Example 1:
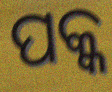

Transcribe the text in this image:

ପକ୍କ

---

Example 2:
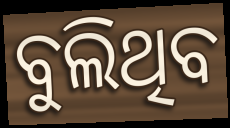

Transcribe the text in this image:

ବୁଲିଥିବ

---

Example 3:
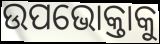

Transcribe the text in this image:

ଉପଭୋକ୍ତାକୁ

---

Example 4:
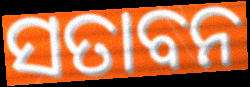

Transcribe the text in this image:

ସତାବନ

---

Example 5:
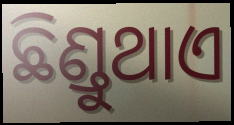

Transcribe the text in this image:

ଛିଣ୍ଡୁଥାଏ